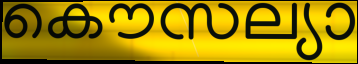
കൌസല്യാ